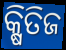
କ୍ଷିତିଜ